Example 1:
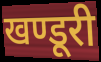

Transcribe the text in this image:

खण्डूरी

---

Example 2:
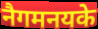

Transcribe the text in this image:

नैगमनयके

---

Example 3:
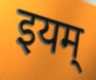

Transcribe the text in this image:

इयम्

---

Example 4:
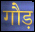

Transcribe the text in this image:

गौड़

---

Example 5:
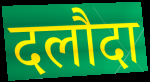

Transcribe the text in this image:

दलौदा